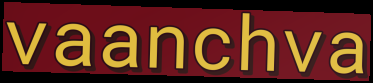
vaanchva